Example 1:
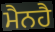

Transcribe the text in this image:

ਮੈਨਹੈ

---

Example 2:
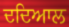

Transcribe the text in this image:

ਦਦਿਆਲ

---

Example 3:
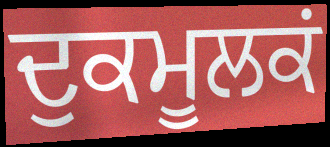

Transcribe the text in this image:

ਦੁਕਮੂਲਕਂ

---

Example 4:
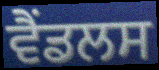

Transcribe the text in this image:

ਵੈਂਡਲਸ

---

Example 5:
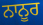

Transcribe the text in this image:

ਨਾਨੂਰ